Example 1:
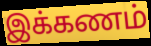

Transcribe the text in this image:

இக்கணம்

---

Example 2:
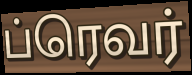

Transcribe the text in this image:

ப்ரெவர்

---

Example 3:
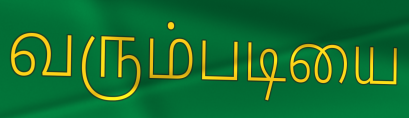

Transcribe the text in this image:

வரும்படியை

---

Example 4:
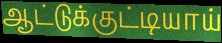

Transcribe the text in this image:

ஆட்டுக்குட்டியாய்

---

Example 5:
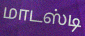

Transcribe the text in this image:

மாடஸ்டி